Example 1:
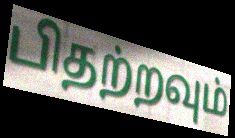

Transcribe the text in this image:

பிதற்றவும்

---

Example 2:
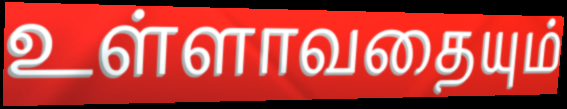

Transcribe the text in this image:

உள்ளாவதையும்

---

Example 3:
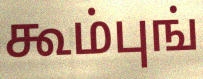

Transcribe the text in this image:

கூம்புங்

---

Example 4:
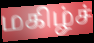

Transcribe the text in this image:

மகிழ்ச்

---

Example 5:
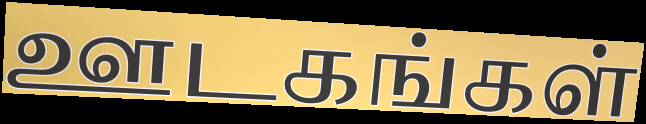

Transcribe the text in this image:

ஊடகங்கள்